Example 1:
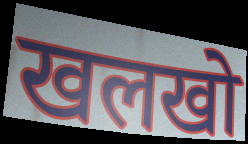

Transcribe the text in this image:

खलखो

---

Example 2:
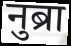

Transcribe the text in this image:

नुब्रा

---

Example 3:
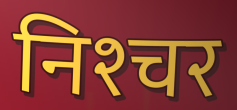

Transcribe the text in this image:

निश्चर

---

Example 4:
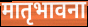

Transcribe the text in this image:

मातृभावना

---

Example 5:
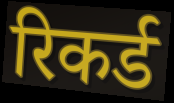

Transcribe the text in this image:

रिकर्ड